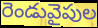
రెండువైపుల